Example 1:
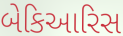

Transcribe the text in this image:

બેકિઆરિસ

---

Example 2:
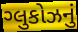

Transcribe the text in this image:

ગ્લુકોઝનું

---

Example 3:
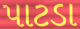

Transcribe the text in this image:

પાટડા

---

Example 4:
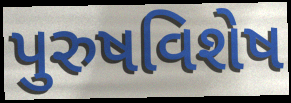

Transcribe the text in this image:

પુરુષવિશેષ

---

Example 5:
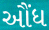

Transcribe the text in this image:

ઔંધ